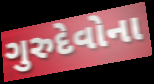
ગુરુદેવોના